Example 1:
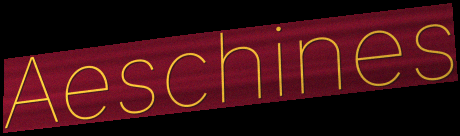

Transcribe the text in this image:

Aeschines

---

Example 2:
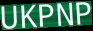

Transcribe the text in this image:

UKPNP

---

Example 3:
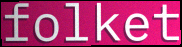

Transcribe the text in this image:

folket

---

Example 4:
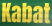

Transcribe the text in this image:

Kabat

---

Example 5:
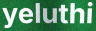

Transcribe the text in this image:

yeluthi